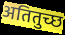
अतितुच्छ